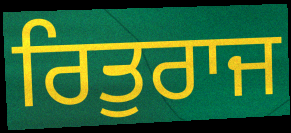
ਰਿਤੁਰਾਜ